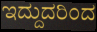
ಇದ್ದುದರಿಂದ